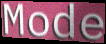
Mode